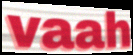
vaah